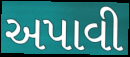
અપાવી